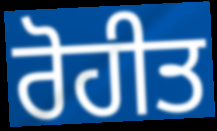
ਰੋਹੀਤ